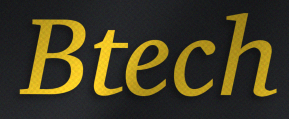
Btech